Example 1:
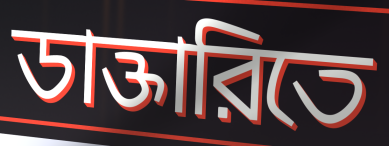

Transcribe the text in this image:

ডাক্তারিতে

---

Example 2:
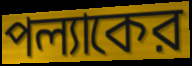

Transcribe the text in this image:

পল্যাকের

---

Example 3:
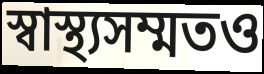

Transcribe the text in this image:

স্বাস্থ্যসম্মতও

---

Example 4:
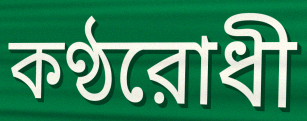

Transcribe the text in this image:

কণ্ঠরোধী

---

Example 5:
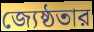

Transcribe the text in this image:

জ্যেষ্ঠতার